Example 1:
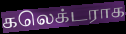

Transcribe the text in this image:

கலெக்டராக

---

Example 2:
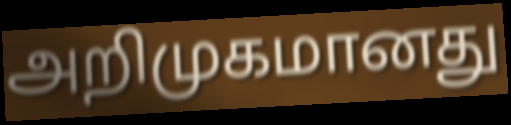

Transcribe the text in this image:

அறிமுகமானது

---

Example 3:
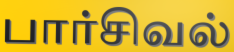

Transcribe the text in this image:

பார்சிவல்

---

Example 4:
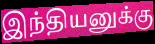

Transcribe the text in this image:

இந்தியனுக்கு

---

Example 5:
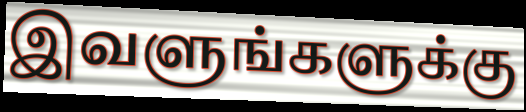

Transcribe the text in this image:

இவளுங்களுக்கு